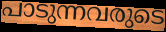
പാടുന്നവരുടെ